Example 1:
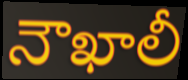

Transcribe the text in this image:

నౌఖాలీ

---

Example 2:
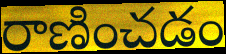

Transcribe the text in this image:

రాణించడం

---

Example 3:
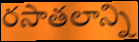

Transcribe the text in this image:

రసాతలాన్ని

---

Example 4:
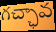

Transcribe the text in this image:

గచ్ఛావ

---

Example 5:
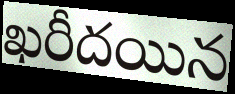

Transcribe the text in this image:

ఖరీదయిన